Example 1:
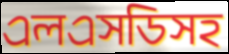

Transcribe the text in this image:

এলএসডিসহ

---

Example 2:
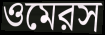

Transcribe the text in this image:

ওমেরস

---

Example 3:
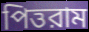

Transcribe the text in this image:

পিত্তরাম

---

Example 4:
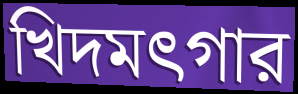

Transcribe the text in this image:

খিদমৎগার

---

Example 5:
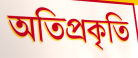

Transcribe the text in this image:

অতিপ্রকৃতি